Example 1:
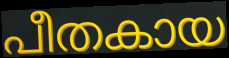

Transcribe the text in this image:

പീതകായ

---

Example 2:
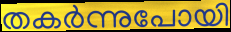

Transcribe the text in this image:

തകർന്നുപോയി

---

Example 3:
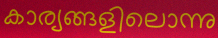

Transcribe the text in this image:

കാര്യങ്ങളിലൊന്നു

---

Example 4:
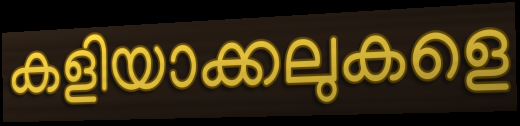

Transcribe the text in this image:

കളിയാക്കലുകളെ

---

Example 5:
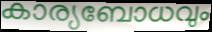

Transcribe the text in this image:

കാര്യബോധവും